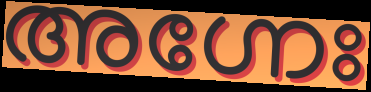
അഗ്നേഃ